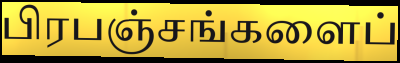
பிரபஞ்சங்களைப்